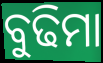
ବୁଢିମା